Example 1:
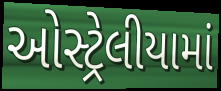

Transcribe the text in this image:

ઓસ્ટ્રેલીયામાં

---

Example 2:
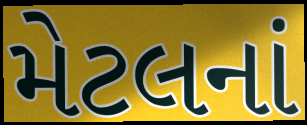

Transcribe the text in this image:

મેટલનાં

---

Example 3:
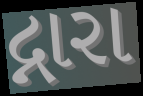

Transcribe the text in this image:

દ્નારા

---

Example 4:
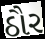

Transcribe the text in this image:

ઠૌર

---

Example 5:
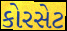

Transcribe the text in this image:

કોરસેટ